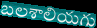
బలశాలియగు